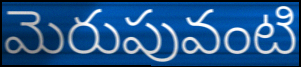
మెరుపువంటి